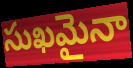
సుఖమైనా